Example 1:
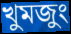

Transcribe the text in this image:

খুমজুং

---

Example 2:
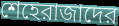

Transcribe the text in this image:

শেহেরাজাদের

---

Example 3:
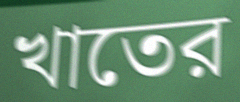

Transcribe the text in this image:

খাতের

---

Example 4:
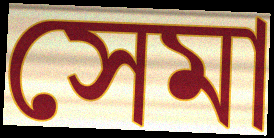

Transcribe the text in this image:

সেমা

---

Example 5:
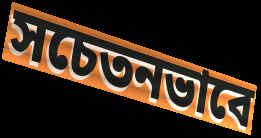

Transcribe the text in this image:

সচেতনভাবে